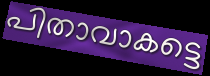
പിതാവാകട്ടെ